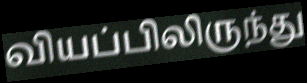
வியப்பிலிருந்து